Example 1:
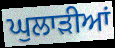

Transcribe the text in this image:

ਘੁਲਾੜੀਆਂ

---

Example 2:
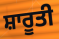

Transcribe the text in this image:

ਸ਼ਾਰੂਤੀ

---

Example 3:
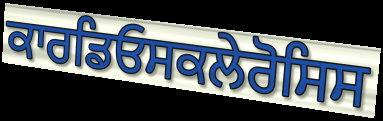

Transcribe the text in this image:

ਕਾਰਡਿਓਸਕਲੇਰੋਸਿਸ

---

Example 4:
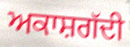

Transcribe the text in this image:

ਅਕਾਸ਼ਗੱਦੀ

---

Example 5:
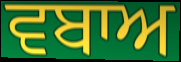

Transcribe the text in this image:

ਵਬਾਅ